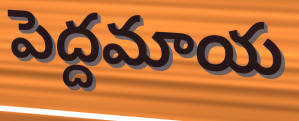
పెద్దమాయ